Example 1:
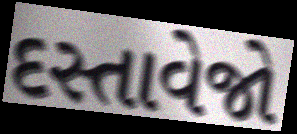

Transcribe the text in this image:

દસ્તાવેજો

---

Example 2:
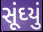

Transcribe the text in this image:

સૂંઘ્યું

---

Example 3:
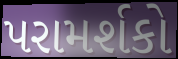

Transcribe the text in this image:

પરામર્શકો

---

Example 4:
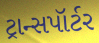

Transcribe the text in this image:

ટ્રાન્સપૉર્ટર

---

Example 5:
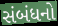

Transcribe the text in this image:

સંબંધનો